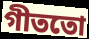
গীততো